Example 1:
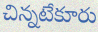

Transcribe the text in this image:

చిన్నటేకూరు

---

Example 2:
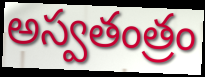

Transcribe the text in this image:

అస్వతంత్రం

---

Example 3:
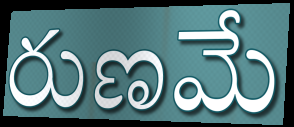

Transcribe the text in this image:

రుణమే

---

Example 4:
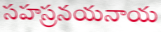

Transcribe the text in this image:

సహస్రనయనాయ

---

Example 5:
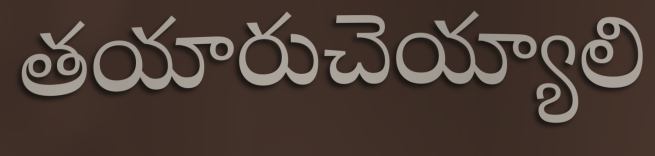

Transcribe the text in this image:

తయారుచెయ్యాలి